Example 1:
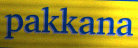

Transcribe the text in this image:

pakkana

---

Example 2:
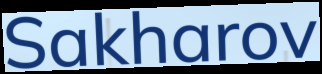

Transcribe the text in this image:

Sakharov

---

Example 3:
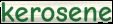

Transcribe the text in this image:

kerosene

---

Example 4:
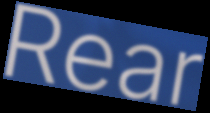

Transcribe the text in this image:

Rear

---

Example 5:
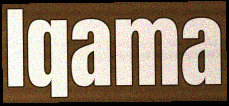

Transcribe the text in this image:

Iqama